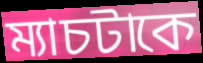
ম্যাচটাকে